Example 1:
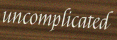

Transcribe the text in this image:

uncomplicated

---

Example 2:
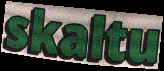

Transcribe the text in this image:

skaltu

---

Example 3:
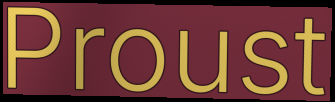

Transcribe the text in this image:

Proust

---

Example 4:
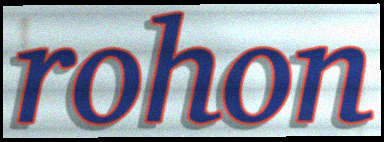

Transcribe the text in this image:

rohon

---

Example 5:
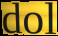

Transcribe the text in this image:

dol